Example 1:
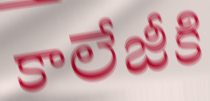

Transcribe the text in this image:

కాలేజీకి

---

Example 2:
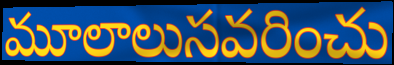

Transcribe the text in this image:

మూలాలుసవరించు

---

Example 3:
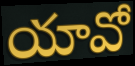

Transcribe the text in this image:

యావో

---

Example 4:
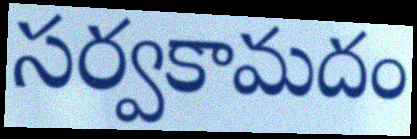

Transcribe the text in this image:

సర్వకామదం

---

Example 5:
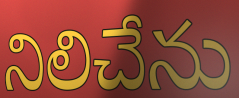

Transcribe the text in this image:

నిలిచేను